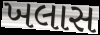
ખલાસ